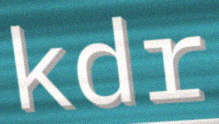
kdr